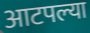
आटपल्या